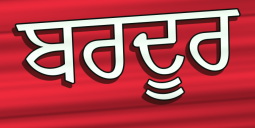
ਬਰਦੂਰ